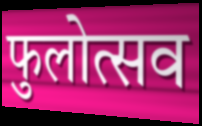
फुलोत्सव